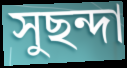
সুছন্দা